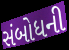
સંબોધની